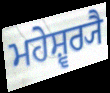
ਮਹੇਸ਼੍ਵਰ੍ਯੈ